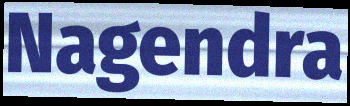
Nagendra